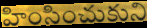
హింసించుకుని